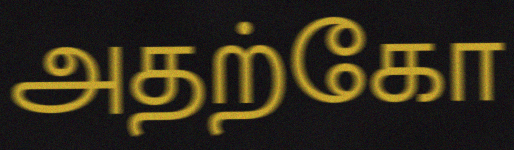
அதற்கோ